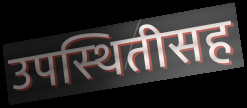
उपस्थितीसह